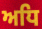
ਅਧਿ